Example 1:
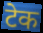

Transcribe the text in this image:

टेक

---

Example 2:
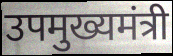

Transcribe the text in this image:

उपमुख्यमंत्री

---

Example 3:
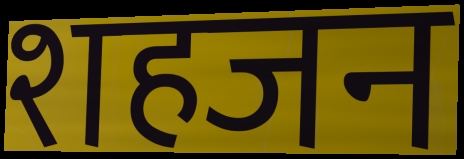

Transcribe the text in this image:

शहजन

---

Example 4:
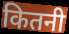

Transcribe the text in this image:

कितनी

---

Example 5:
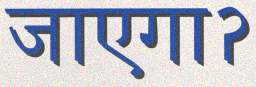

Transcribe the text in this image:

जाएगाॽ